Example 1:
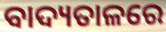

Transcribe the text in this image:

ବାଦ୍ୟତାଳରେ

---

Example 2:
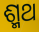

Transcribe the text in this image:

ଶ୍ମଥ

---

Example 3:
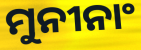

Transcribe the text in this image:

ମୁନୀନାଂ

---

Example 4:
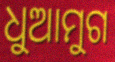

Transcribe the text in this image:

ଧୁଆମୁଗ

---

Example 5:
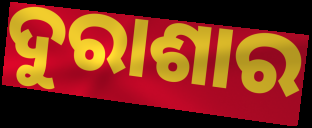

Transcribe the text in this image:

ଦୁରାଶାର